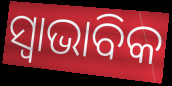
ସ୍ୱାଭାବିକ